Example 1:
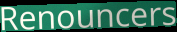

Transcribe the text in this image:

Renouncers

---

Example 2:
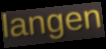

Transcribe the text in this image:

langen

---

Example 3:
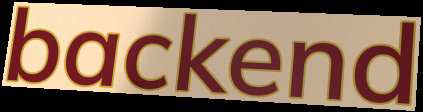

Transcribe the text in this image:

backend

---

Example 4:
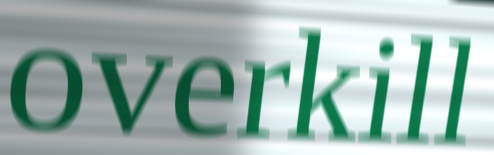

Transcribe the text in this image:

overkill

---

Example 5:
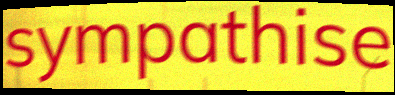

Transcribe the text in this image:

sympathise